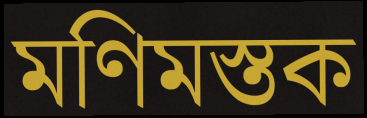
মণিমস্তক